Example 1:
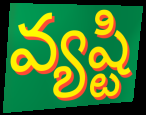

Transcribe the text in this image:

వ్యష్టి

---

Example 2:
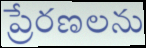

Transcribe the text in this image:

ప్రేరణలను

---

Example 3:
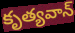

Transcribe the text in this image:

కృత్యవాన్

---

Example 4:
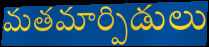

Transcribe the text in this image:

మతమార్పిడులు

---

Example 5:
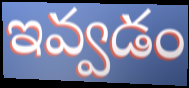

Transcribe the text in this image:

ఇవ్వడం